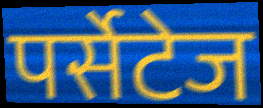
पर्सेटेज